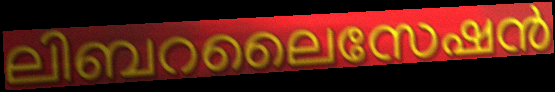
ലിബറലൈസേഷൻ